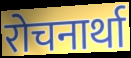
रोचनार्था